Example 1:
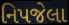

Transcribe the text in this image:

નિપજેલા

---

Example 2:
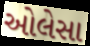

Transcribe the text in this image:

ઓલેસા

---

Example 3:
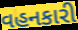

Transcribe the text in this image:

વહનકારી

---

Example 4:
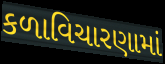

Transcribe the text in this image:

કળાવિચારણામાં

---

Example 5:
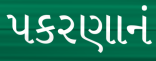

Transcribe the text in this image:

પકરણાનં